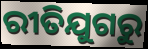
ରୀତିଯୁଗରୁ